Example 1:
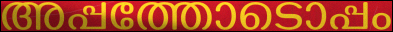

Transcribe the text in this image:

അപ്പത്തോടൊപ്പം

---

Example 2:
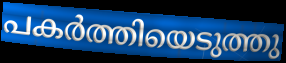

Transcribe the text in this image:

പകർത്തിയെടുത്തു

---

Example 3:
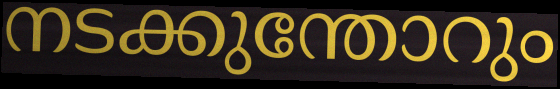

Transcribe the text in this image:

നടക്കുന്തോറും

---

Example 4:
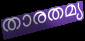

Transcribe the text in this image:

താരതമ്യ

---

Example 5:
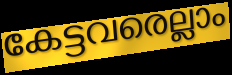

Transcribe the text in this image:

കേട്ടവരെല്ലാം